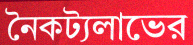
নৈকট্যলাভের